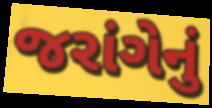
જરાંગેનું